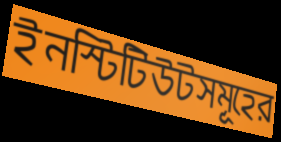
ইনস্টিটিউটসমূহের